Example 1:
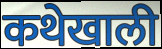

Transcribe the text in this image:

कथेखाली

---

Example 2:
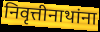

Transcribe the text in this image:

निवृत्तीनाथांना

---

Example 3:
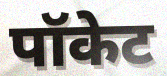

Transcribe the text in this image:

पॉकेट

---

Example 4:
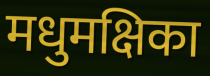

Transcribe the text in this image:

मधुमक्षिका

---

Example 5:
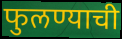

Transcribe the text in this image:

फुलण्याची